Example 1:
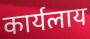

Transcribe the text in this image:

कार्यलाय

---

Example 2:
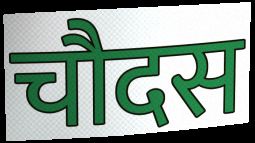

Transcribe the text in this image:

चौदस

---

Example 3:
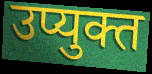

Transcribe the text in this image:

उप्युक्त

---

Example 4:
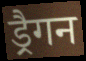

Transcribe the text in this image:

ड्रैगन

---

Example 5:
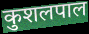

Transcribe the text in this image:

कुशलपाल